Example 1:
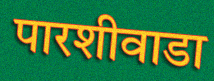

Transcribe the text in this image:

पारशीवाडा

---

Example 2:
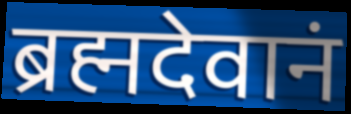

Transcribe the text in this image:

ब्रह्मदेवानं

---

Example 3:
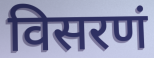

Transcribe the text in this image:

विसरणं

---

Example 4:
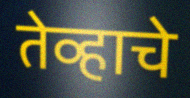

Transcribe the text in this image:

तेव्हाचे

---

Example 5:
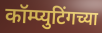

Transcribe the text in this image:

कॉम्प्युटिंगच्या